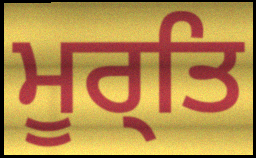
ਮੂਰ੍ਤਿ